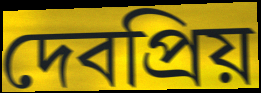
দেবপ্রিয়